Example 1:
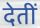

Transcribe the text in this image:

देतीं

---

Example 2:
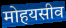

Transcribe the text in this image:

मोहयसीव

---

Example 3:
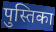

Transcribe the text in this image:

पुस्तिका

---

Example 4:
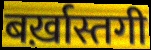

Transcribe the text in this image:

बर्ख़ास्तगी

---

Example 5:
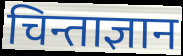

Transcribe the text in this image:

चिन्ताज्ञान